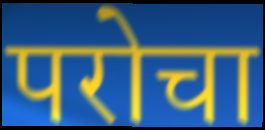
परोचा